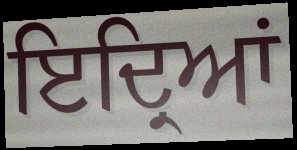
ਇਦ੍ਰਿਆਂ